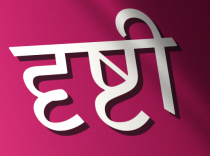
दृष्टी